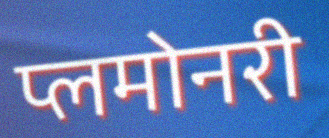
प्लमोनरी